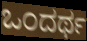
ಒಂದರ್ಥ